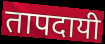
तापदायी